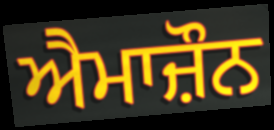
ਐਮਾਜ਼ੌਨ